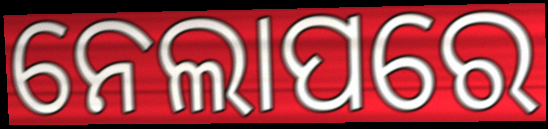
ନେଲାପରେ